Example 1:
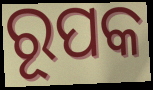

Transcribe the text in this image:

ରୂପକ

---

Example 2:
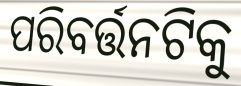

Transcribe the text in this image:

ପରିବର୍ତ୍ତନଟିକୁ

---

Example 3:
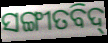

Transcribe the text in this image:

ସଙ୍ଗୀତବିଦ୍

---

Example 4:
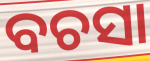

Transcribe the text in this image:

ବଚସା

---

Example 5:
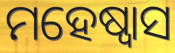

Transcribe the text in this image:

ମହେଷ୍ୱାସ